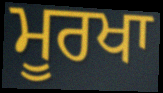
ਮੂਰਖਾ